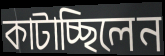
কাটাচ্ছিলেন